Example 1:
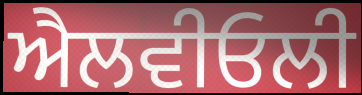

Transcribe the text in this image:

ਐਲਵੀਓਲੀ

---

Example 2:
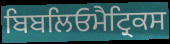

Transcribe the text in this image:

ਬਿਬਲਿਓਮੈਟ੍ਰਿਕਸ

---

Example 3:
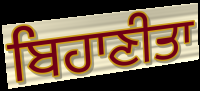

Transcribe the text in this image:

ਬਿਹਾਣੀਤਾ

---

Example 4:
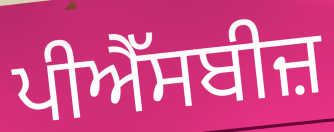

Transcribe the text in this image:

ਪੀਐੱਸਬੀਜ਼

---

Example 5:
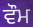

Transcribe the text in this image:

ਵੌਮ